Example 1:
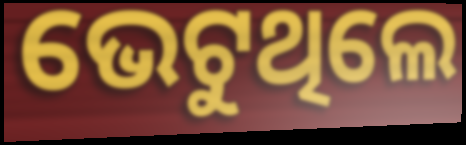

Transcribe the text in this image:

ଭେଟୁଥିଲେ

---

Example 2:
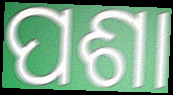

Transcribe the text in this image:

ପଶା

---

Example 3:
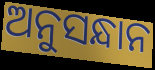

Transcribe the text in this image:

ଅନୁସନ୍ଧାନ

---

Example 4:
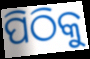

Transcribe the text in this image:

ପିଠିକୁ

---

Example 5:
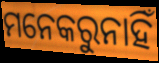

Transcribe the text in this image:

ମନେକରୁନାହିଁ